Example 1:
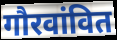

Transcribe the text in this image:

गौरवांवित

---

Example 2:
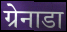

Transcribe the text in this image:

ग्रेनाडा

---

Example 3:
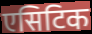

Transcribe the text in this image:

एसिटिक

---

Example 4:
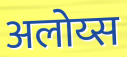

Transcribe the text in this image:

अलोय्स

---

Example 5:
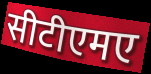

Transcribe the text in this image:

सीटीएमए